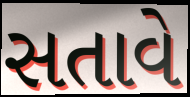
સતાવે